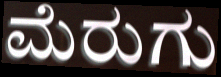
ಮೆರುಗು